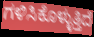
ಗಳಿಸಿಕೊಳ್ಳುತ್ತಿದೆ